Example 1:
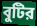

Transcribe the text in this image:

বুটির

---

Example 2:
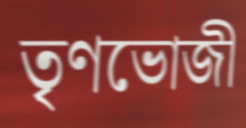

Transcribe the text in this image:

তৃণভোজী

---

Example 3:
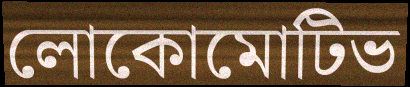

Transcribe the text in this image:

লোকোমোটিভ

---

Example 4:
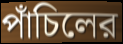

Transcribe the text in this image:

পাঁচিলের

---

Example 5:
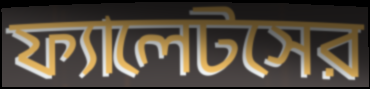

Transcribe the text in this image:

ফ্যালেটসের